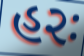
હરઃ